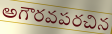
అగౌరవపరచిన